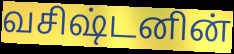
வசிஷ்டனின்